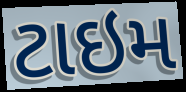
ટાઇમ